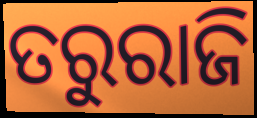
ତରୁରାଜି